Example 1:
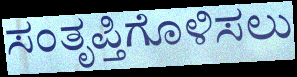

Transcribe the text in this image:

ಸಂತೃಪ್ತಿಗೊಳಿಸಲು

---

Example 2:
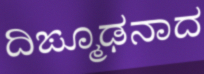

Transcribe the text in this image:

ದಿಙ್ಮೂಢನಾದ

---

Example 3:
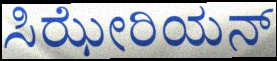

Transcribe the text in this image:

ಸಿಝೇರಿಯನ್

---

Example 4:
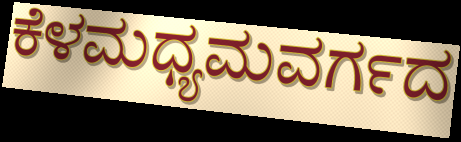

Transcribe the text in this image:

ಕೆಳಮಧ್ಯಮವರ್ಗದ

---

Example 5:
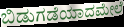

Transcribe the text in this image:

ಬಿಡುಗಡೆಯಾದಮೇಲೆ